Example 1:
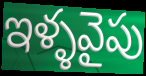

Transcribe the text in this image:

ఇళ్ళవైపు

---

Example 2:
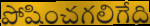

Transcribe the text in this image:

పోషించగలిగేది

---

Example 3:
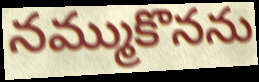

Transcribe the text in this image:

నమ్ముకొనను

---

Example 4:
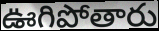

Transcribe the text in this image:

ఊగిపోతారు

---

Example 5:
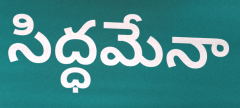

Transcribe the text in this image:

సిద్ధమేనా